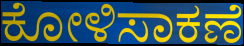
ಕೋಳಿಸಾಕಣೆ